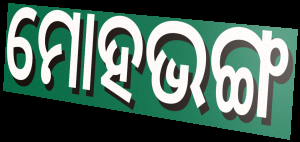
ମୋହଭଙ୍ଗ